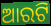
ଆରଟି